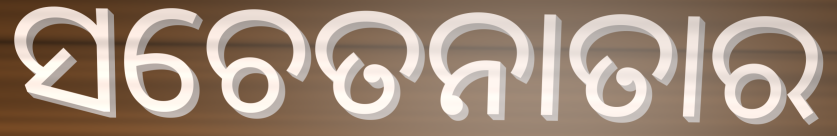
ସଚେତନାତାର